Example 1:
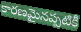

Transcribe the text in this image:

కారణమైనప్పటికీ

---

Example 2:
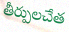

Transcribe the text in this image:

తీర్పులచేత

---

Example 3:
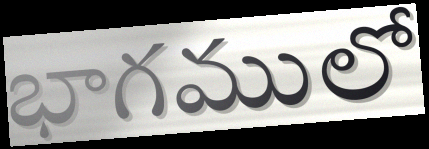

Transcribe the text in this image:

భాగములో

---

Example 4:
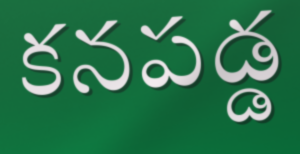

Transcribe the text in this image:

కనపడ్డ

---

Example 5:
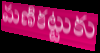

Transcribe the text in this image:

మణికట్టుకు